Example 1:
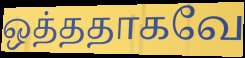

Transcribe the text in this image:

ஒத்ததாகவே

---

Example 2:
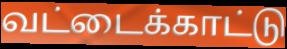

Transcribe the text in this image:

வட்டைக்காட்டு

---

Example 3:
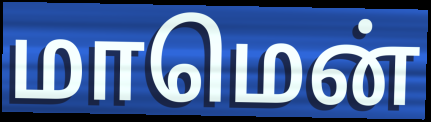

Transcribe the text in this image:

மாமென்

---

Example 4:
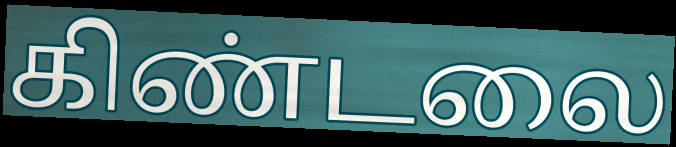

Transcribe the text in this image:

கிண்டலை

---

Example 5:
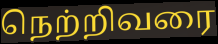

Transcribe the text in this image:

நெற்றிவரை